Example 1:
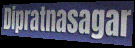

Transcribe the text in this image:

Dipratnasagar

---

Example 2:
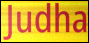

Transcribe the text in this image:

Judha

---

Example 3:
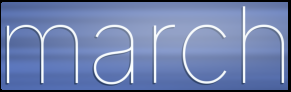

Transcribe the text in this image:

march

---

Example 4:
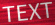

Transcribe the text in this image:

TEXT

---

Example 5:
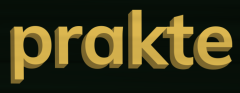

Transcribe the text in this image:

prakte